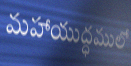
మహాయుద్ధములో